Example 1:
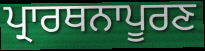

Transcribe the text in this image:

ਪ੍ਰਾਰਥਨਾਪੂਰਣ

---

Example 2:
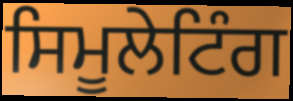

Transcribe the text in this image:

ਸਿਮੂਲੇਟਿੰਗ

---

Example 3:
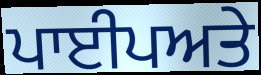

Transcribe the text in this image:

ਪਾਈਪਅਤੇ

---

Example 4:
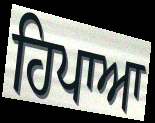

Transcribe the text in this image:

ਹਿਪਾਆ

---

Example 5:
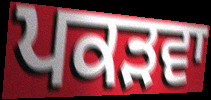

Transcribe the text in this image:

ਪਕੜਵਾ